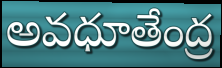
అవధూతేంద్ర